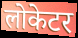
लोकेटर